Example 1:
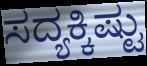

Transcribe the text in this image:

ಸದ್ಯಕ್ಕಿಷ್ಟು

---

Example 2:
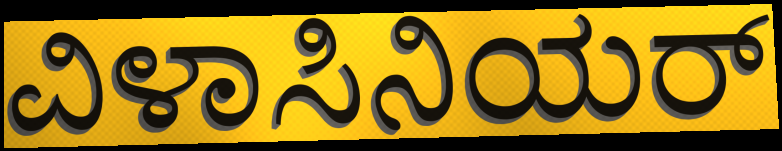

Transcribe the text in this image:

ವಿಳಾಸಿನಿಯರ್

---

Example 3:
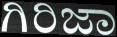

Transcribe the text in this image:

ಗಿರಿಜಾ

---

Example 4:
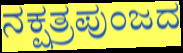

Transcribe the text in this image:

ನಕ್ಷತ್ರಪುಂಜದ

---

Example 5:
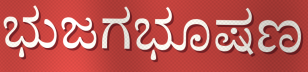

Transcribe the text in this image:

ಭುಜಗಭೂಷಣ